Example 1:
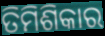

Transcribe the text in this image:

ତିମିଶିକାର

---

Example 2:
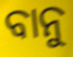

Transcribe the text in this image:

ବାନୁ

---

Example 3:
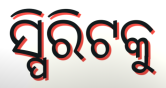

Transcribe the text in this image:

ସ୍ପିରିଟକୁ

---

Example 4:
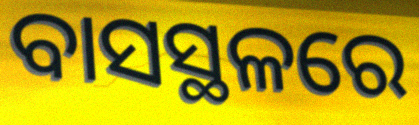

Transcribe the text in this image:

ବାସସ୍ଥଳରେ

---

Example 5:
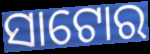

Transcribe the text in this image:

ସାଟୋର